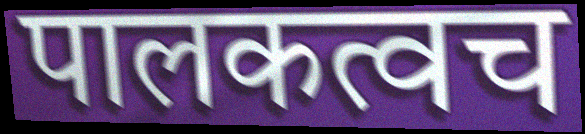
पालकत्वच